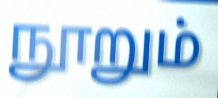
நூறும்